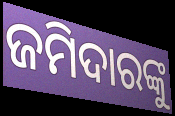
ଜମିଦାରଙ୍କୁ